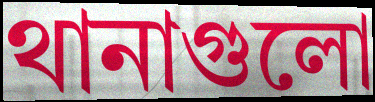
থানাগুলো